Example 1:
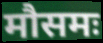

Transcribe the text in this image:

मौसमः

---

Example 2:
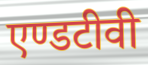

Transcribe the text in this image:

एण्डटीवी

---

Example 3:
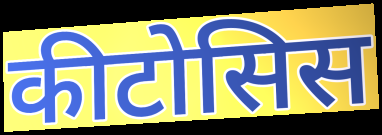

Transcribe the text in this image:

कीटोसिस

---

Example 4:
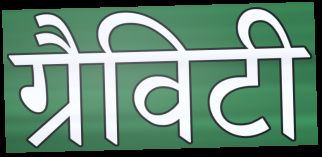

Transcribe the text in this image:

ग्रैविटी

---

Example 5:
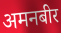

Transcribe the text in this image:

अमनबीर